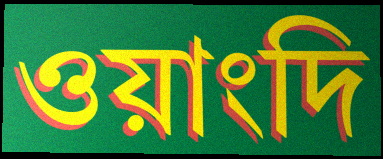
ওয়াংদি